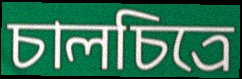
চালচিত্রে